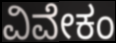
ವಿವೇಕಂ